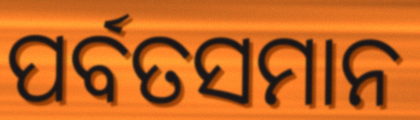
ପର୍ବତସମାନ